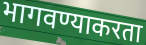
भागवण्याकरता